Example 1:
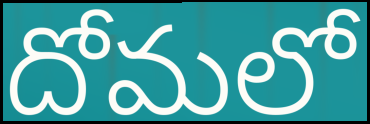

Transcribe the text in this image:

దోమలో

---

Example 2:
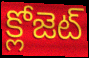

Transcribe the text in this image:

క్లోజెట్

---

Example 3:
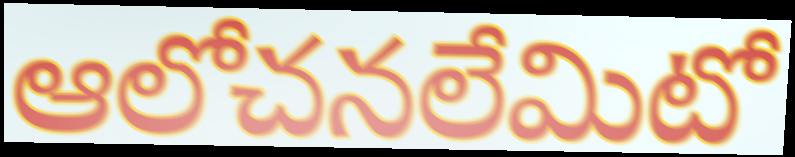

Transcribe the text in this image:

ఆలోచనలేమిటో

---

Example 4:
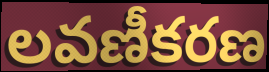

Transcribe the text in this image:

లవణీకరణ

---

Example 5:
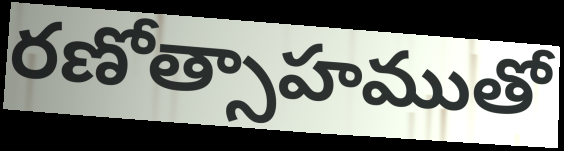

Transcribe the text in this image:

రణోత్సాహముతో